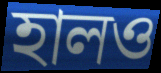
হালও